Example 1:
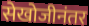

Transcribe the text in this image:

सेखोजीनंतर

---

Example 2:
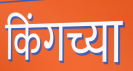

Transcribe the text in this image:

किंगच्या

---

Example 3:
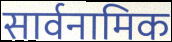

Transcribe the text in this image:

सार्वनामिक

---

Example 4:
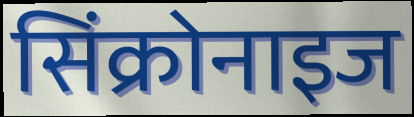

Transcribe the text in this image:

सिंक्रोनाइज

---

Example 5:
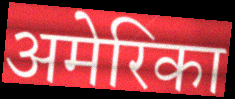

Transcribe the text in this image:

अमेरिका